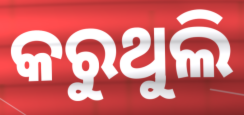
କରୁଥୁଲି